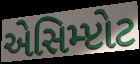
એસિમ્પ્ટોટ